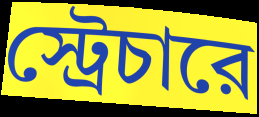
স্ট্রেচারে